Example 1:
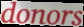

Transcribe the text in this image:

donors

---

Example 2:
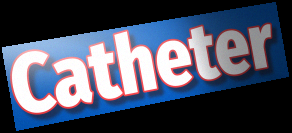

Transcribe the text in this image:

Catheter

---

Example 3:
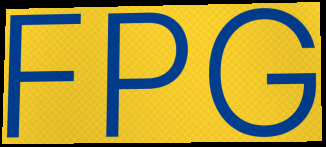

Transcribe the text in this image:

FPG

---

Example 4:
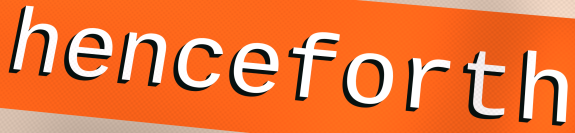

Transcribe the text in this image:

henceforth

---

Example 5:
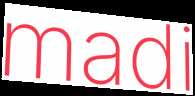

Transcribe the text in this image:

madi